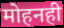
मोहनही